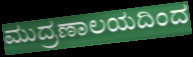
ಮುದ್ರಣಾಲಯದಿಂದ